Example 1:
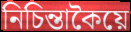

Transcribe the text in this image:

নিচিন্তাকৈয়ে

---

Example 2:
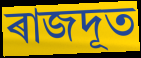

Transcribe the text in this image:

ৰাজদূত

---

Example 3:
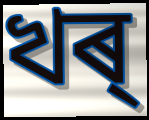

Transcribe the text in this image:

খৰ্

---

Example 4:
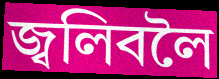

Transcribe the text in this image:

জ্বলিবলৈ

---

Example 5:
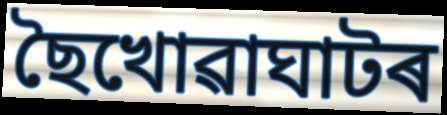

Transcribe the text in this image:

ছৈখোৱাঘাটৰ